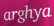
arghya